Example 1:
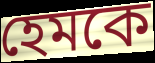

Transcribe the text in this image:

হেমকে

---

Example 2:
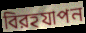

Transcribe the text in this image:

বিরহযাপন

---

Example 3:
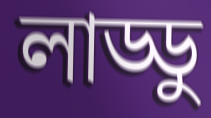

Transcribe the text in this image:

লাড্ডু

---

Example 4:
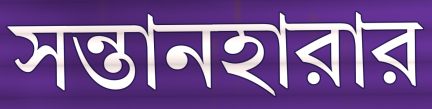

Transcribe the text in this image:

সন্তানহারার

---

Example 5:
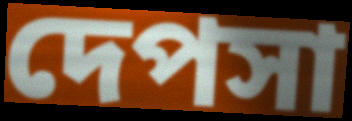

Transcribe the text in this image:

দেপসা